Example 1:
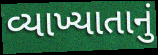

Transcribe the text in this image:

વ્યાખ્યાતાનું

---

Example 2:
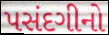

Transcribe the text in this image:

પસંદગીનો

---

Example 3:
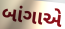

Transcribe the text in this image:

બાંગાએ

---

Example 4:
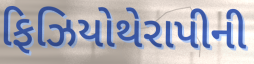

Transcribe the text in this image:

ફિઝિયોથેરાપીની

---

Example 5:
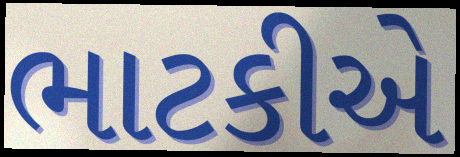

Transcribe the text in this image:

ભાટકીએ